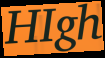
HIgh